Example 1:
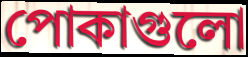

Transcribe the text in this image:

পোকাগুলো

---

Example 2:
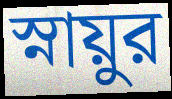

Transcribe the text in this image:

স্নায়ুর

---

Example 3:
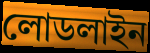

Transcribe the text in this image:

লোডলাইন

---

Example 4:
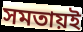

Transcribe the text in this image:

সমতায়ই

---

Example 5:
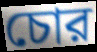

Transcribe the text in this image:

চোর